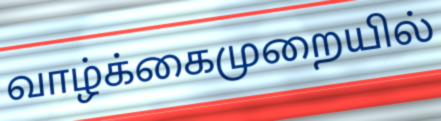
வாழ்க்கைமுறையில்